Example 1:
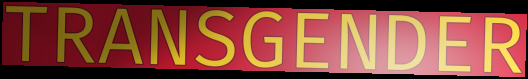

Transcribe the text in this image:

TRANSGENDER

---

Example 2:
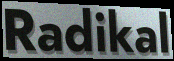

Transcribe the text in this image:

Radikal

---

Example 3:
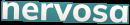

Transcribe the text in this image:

nervosa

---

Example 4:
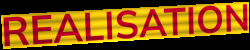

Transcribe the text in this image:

REALISATION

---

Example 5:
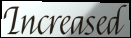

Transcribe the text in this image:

Increased